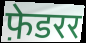
फ़ेडरर